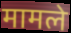
मामले